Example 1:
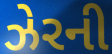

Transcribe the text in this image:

ઝેરની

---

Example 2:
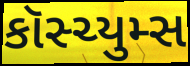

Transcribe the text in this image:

કૉસ્ચ્યુમ્સ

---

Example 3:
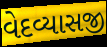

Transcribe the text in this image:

વેદવ્યાસજી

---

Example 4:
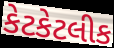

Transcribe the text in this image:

કેટકેટલીક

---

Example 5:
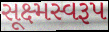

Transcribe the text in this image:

સૂક્ષ્મસ્વરૂપ